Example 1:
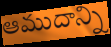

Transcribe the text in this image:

ఆముదాన్ని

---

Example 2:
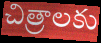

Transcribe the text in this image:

చిత్రాలకు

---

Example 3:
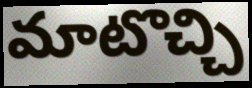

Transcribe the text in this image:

మాటొచ్చి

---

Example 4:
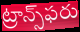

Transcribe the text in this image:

ట్రాన్స్‌ఫరు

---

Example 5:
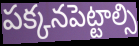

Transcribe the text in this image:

పక్కనపెట్టాల్సి